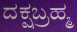
ದಕ್ಷಬ್ರಹ್ಮ